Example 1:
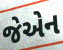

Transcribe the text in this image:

જેએન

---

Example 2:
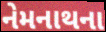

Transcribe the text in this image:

નેમનાથના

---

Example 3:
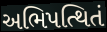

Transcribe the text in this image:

અભિપત્થિતં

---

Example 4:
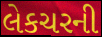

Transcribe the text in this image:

લેકચરની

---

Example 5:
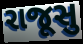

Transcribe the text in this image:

રાજૂસુ